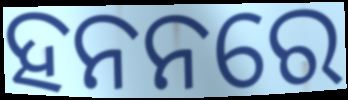
ହନନରେ